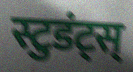
स्टुडंट्स्